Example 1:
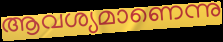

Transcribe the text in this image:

ആവശ്യമാണെന്നു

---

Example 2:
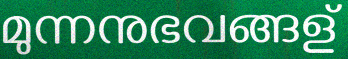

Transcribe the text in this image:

മുന്നനുഭവങ്ങള്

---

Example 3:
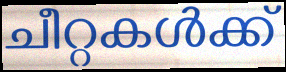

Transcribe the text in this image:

ചീറ്റകൾക്ക്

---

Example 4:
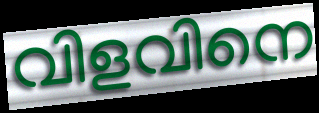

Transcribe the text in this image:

വിളവിനെ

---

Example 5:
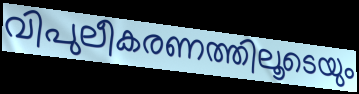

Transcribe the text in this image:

വിപുലീകരണത്തിലൂടെയും